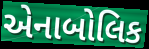
એનાબોલિક